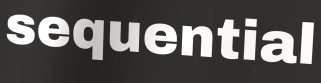
sequential